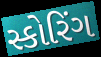
સ્કોરિંગ